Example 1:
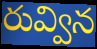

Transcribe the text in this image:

రువ్విన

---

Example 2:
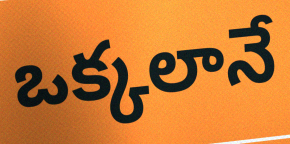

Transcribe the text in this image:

ఒక్కలానే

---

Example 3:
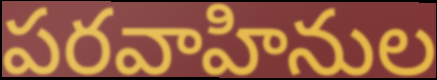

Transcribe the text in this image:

పరవాహినుల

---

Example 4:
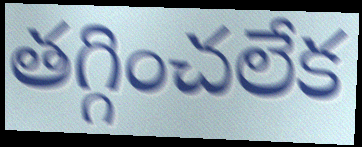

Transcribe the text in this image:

తగ్గించలేక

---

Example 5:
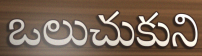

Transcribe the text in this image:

ఒలుచుకుని